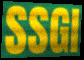
SSGI